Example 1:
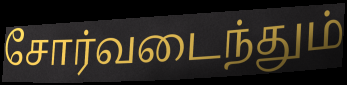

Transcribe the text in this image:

சோர்வடைந்தும்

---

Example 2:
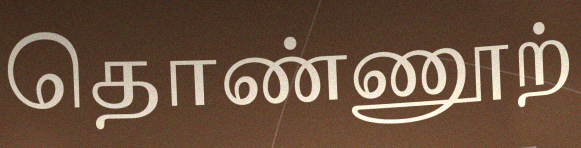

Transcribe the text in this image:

தொண்ணூற்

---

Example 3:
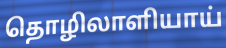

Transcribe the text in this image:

தொழிலாளியாய்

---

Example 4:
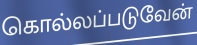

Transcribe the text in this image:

கொல்லப்படுவேன்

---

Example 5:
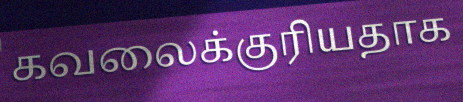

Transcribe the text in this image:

கவலைக்குரியதாக